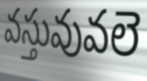
వస్తువువలె